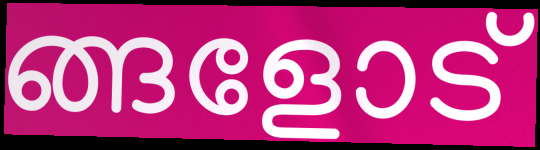
ങ്ങളോട്